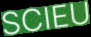
SCIEU